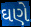
ઘણે